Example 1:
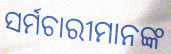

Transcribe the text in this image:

ସର୍ମଚାରୀମାନଙ୍କ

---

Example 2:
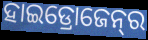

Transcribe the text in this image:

ହାଇଡ୍ରୋଜେନ୍‌ର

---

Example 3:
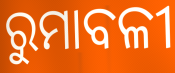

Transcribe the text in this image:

ରୁମାବଳୀ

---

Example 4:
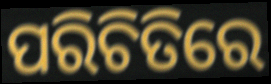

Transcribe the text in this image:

ପରିଚିତିରେ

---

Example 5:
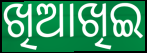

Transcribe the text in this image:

ଖିଆଖିଇ